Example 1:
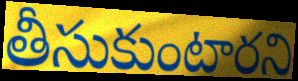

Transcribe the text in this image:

తీసుకుంటారని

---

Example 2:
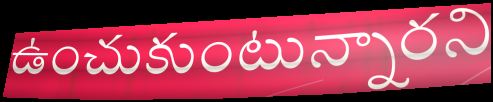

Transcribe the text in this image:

ఉంచుకుంటున్నారని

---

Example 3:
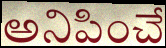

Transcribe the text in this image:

అనిపించే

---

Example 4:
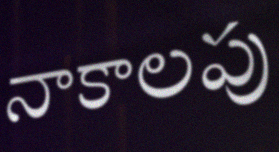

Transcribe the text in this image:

నాకాలపు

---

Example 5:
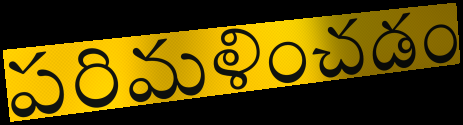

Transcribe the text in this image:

పరిమళించడం